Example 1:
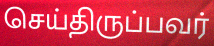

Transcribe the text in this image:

செய்திருப்பவர்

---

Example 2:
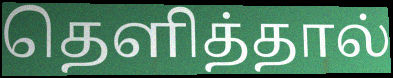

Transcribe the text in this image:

தெளித்தால்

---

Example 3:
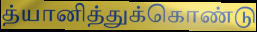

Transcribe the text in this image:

த்யானித்துக்கொண்டு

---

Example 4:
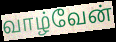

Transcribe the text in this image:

வாழ்வேன்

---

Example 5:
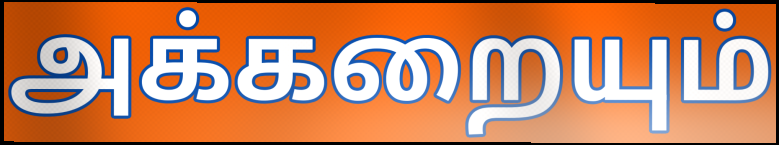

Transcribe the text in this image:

அக்கறையும்